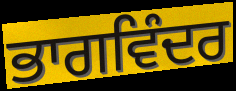
ਭਾਗਵਿੰਦਰ